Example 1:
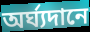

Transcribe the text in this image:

অর্ঘ্যদানে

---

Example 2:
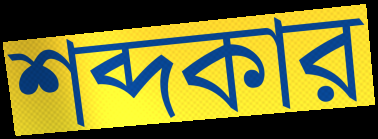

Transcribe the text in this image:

শব্দকার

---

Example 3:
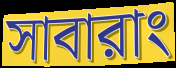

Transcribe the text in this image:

সাবারাং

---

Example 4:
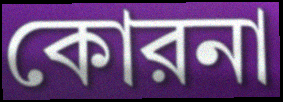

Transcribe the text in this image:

কোরনা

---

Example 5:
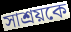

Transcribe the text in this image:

সাশ্রয়কে